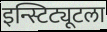
इन्स्टिट्यूटला